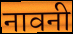
नावनी